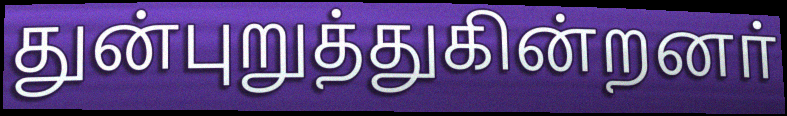
துன்புறுத்துகின்றனர்